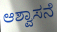
ಆಶ್ವಾಸನೆ